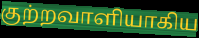
குற்றவாளியாகிய